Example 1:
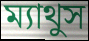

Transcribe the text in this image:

ম্যাথুস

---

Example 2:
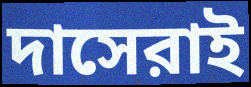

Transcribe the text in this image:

দাসেরাই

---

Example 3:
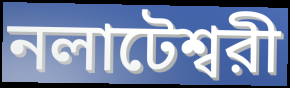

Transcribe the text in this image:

নলাটেশ্বরী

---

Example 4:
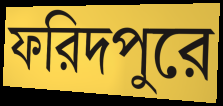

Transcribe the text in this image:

ফরিদপুরে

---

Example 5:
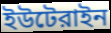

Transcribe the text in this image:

ইউটেরাইন